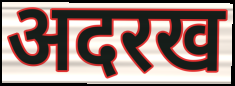
अदरख